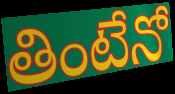
తింటేనో